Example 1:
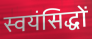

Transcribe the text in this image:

स्वयंसिद्धों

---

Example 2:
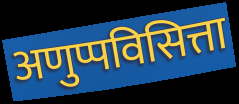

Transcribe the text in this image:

अणुप्पविसित्ता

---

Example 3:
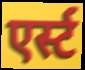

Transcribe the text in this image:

एर्स्ट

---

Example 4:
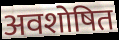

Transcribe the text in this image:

अवशोषित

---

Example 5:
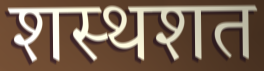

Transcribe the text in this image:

शस्थशत